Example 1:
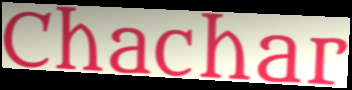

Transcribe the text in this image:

Chachar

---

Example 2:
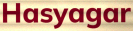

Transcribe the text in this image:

Hasyagar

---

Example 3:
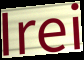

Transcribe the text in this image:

Irei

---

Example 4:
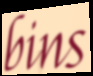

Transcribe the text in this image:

bins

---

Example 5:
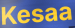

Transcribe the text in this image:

Kesaa